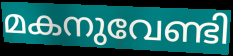
മകനുവേണ്ടി